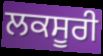
ਲਕਸੂਰੀ